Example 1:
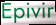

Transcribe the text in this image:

Epivir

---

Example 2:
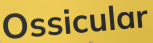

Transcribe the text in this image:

Ossicular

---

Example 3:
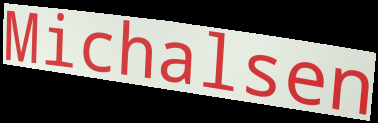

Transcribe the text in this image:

Michalsen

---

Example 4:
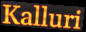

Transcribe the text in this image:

Kalluri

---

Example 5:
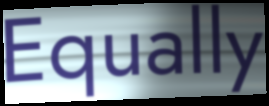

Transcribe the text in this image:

Equally